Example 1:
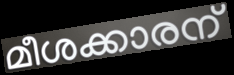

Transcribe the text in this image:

മീശക്കാരന്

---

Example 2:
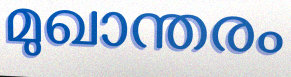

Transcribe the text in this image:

മുഖാന്തരം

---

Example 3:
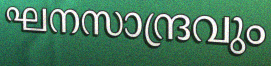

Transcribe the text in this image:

ഘനസാന്ദ്രവും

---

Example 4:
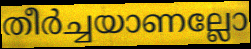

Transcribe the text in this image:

തീർച്ചയാണല്ലോ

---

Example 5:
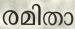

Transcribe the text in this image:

രമിതാ